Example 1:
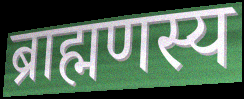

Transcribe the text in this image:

ब्राह्मणस्य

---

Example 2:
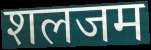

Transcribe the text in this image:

शलजम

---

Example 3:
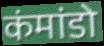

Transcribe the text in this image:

कंमांडो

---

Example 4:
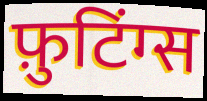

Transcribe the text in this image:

फ़ुटिंग्स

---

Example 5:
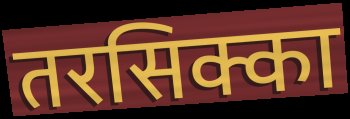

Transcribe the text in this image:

तरसिक्का